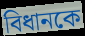
বিধানকে